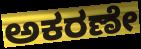
ಅಕರಣೇ